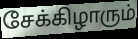
சேக்கிழாரும்